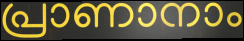
പ്രാണാനാം